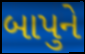
બાપુને